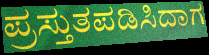
ಪ್ರಸ್ತುತಪಡಿಸಿದಾಗ